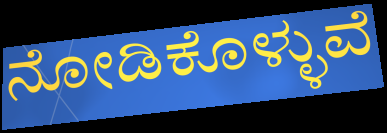
ನೋಡಿಕೊಳ್ಳುವೆ